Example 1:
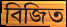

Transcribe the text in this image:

বিজিত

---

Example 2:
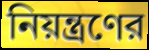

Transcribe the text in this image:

নিয়ন্ত্রণের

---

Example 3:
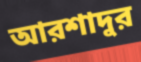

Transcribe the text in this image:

আরশাদুর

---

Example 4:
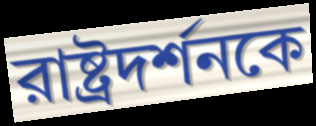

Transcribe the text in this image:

রাষ্ট্রদর্শনকে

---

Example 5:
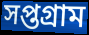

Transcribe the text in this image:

সপ্তগ্রাম